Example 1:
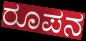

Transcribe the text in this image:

ರೂಪನ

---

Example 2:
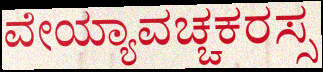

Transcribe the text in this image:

ವೇಯ್ಯಾವಚ್ಚಕರಸ್ಸ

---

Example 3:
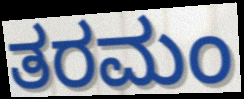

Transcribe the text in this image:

ತರಮಂ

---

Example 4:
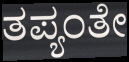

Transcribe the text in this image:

ತಪ್ಯಂತೇ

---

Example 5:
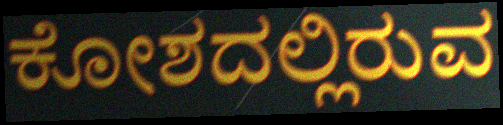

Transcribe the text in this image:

ಕೋಶದಲ್ಲಿರುವ